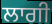
ਲਾਗੀ